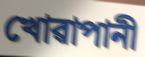
খোৱাপানী